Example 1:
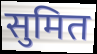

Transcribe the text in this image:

सुमित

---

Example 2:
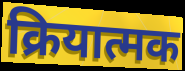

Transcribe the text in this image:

क्रियात्मक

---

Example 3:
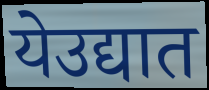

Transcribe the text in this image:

येउद्यात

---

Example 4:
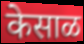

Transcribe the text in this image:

केसाळ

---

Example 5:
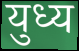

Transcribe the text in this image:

युध्य